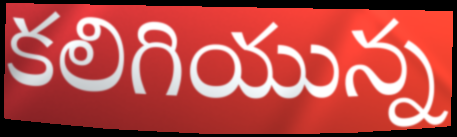
కలిగియున్న